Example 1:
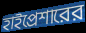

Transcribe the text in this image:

হাইপ্রেশারের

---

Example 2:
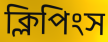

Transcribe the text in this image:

ক্লিপিংস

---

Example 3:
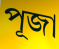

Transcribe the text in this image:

পূজা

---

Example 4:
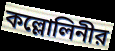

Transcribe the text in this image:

কল্লোলিনীর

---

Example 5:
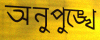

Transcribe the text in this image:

অনুপুঙ্খে